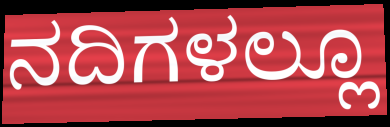
ನದಿಗಳಲ್ಲೂ